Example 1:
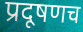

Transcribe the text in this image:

प्रदूषणच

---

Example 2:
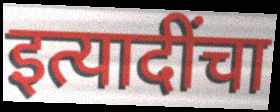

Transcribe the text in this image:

इत्यादींचा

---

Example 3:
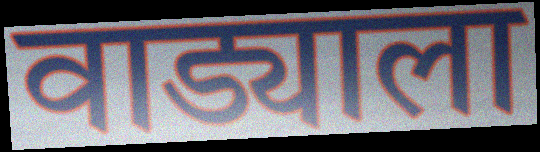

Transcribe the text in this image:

वाड्याला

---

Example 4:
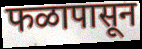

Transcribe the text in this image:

फळापासून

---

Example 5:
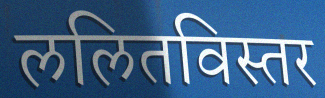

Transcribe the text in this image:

ललितविस्तर